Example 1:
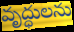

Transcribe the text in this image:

వృద్ధులను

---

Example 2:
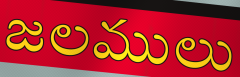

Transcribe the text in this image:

జలములు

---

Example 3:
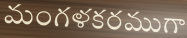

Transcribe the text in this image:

మంగళకరముగా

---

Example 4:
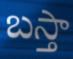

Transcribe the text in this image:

బస్తా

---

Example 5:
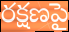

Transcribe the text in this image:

రక్షణపై